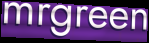
mrgreen